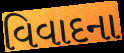
વિવાદના